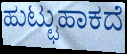
ಹುಟ್ಟುಹಾಕದೆ